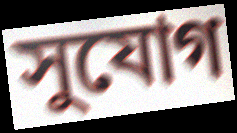
সুযোগ